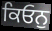
ਕਿਓਨੁ